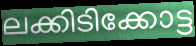
ലക്കിടിക്കോട്ട